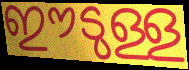
ഈടുള്ള